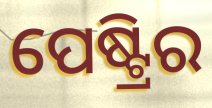
ପେଷ୍ଟ୍ରିର